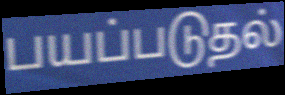
பயப்படுதல்